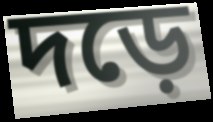
দড়ে